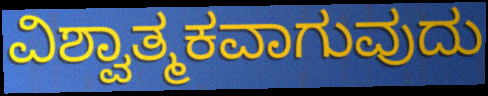
ವಿಶ್ವಾತ್ಮಕವಾಗುವುದು